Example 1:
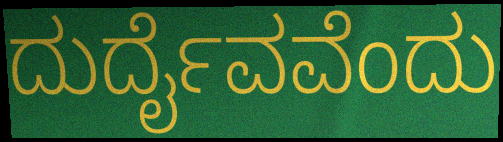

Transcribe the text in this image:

ದುರ್ದೈವವೆಂದು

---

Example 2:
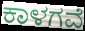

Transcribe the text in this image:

ಕಾಳಗವೆ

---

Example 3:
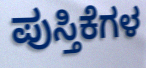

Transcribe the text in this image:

ಪುಸ್ತಿಕೆಗಳ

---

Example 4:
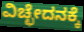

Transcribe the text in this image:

ವಿಚ್ಛೇದನಕ್ಕೆ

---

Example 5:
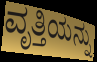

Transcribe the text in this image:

ವೃತ್ತಿಯನ್ನು